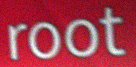
root